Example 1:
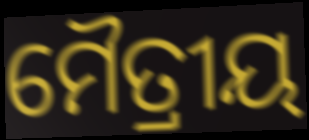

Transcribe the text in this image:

ମୈତ୍ରୀୟ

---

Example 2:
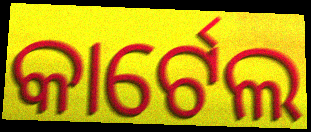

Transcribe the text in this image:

କାର୍ଟେଲ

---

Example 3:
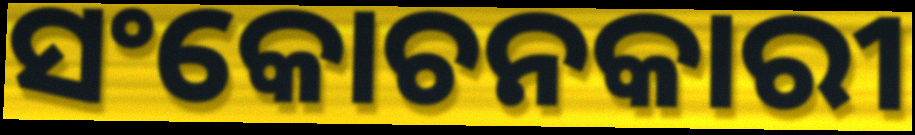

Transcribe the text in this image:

ସଂକୋଚନକାରୀ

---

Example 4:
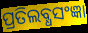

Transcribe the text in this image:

ପ୍ରତିଲବ୍ଧସଂଜ୍ଞା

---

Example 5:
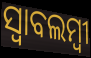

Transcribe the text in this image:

ସ୍ଵାବଲମ୍ଵୀ